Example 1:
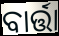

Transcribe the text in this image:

ବାର୍ତ୍ତା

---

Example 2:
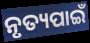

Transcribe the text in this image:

ନୃତ୍ୟପାଇଁ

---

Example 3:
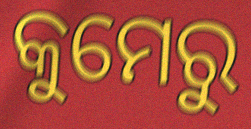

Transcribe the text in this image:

କୁମେରୁ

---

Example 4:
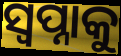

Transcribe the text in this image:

ସ୍ୱପ୍ନାକୁ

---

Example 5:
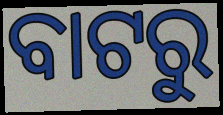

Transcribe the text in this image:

ବାଟରୁ